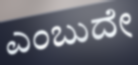
ಎಂಬುದೇ